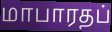
மாபாரதப்